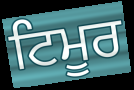
ਟਿਮੂਰ